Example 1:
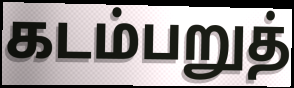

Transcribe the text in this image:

கடம்பறுத்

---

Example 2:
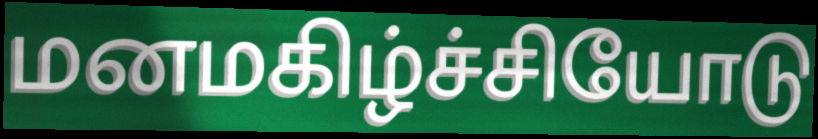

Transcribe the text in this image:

மனமகிழ்ச்சியோடு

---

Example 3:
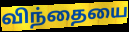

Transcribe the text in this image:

விந்தையை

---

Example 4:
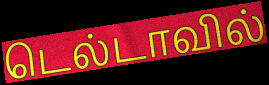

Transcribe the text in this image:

டெல்டாவில்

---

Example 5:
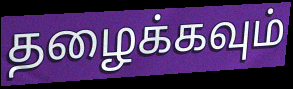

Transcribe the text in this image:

தழைக்கவும்